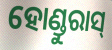
ହୋଣ୍ଡୁରାସ୍